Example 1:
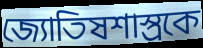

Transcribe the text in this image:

জ্যোতিষশাস্ত্রকে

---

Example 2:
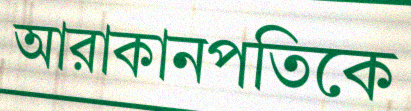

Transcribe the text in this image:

আরাকানপতিকে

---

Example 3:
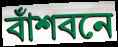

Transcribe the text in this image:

বাঁশবনে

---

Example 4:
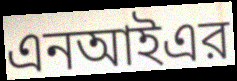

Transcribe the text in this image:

এনআইএর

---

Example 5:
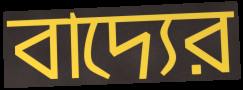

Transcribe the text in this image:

বাদ্যের